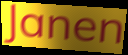
Janen